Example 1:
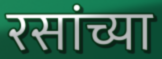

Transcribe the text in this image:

रसांच्या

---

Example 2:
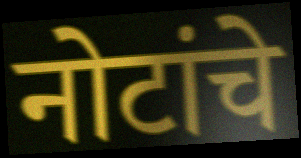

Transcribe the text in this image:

नोटांचे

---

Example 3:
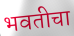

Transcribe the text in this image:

भवतीचा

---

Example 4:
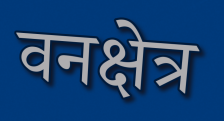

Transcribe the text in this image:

वनक्षेत्र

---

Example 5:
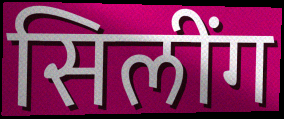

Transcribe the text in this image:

सिलींग